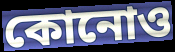
কোনোও